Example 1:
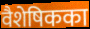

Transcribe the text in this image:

वैशेषिकका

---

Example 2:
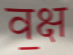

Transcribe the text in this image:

व॒क्ष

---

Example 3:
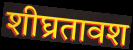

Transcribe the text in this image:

शीघ्रतावश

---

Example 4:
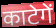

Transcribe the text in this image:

काटेगें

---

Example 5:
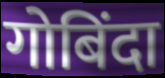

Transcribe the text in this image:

गोबिंदा